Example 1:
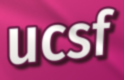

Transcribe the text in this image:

ucsf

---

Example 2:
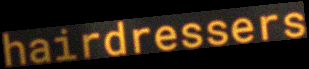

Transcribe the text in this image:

hairdressers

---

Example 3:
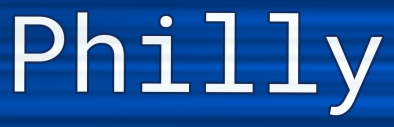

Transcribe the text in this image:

Philly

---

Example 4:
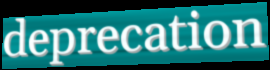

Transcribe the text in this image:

deprecation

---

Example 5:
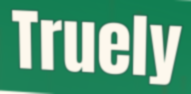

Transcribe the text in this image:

Truely